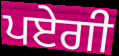
ਪਏਗੀ